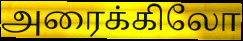
அரைக்கிலோ